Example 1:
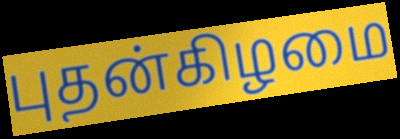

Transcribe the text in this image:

புதன்கிழமை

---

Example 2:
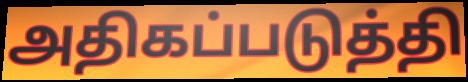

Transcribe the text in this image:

அதிகப்படுத்தி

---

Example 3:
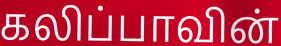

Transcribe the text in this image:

கலிப்பாவின்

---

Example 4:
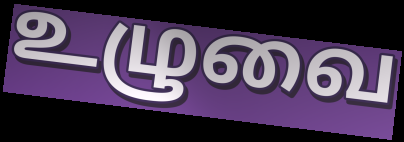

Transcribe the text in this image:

உழுவை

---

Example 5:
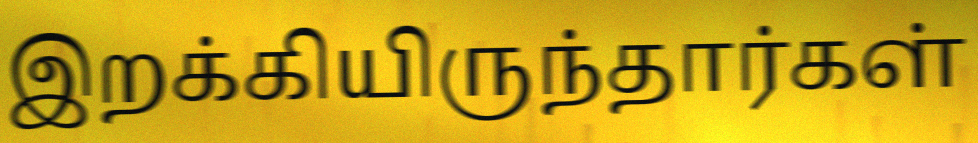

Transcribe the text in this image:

இறக்கியிருந்தார்கள்